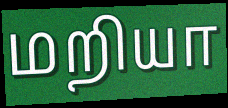
மறியா